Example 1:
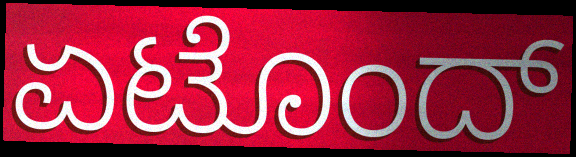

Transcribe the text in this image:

ಏಟೊಂದ್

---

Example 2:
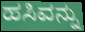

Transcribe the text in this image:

ಹಸಿವನ್ನು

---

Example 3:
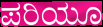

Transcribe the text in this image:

ಪರಿಯೂ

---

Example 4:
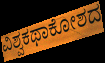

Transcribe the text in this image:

ವಿಶ್ವಕಥಾಕೋಶದ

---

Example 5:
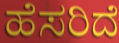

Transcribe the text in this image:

ಹೆಸರಿದೆ